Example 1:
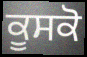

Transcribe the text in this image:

ਕੂਸਕੋ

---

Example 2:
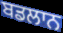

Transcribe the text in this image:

ਬਡਲਾਨ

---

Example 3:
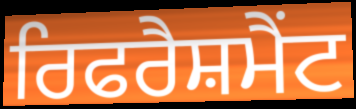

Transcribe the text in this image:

ਰਿਫਰੈਸ਼ਮੈਂਟ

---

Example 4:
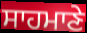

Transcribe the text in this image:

ਸਾਹਮਾਣੇ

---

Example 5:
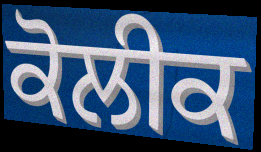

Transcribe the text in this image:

ਕੋਲੀਕ